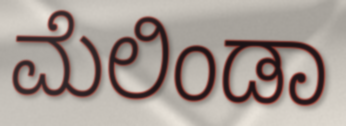
ಮೆಲಿಂಡಾ